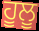
ਹੂਲੂ